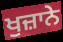
ਖੁਜ਼ਾਨੇ